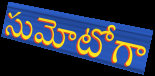
సుమోటోగా